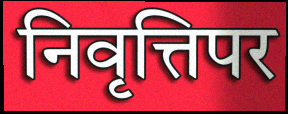
निवृत्तिपर